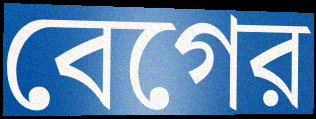
বেগের